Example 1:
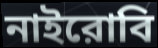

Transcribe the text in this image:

নাইরোবি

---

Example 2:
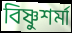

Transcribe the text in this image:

বিষ্ণুশর্মা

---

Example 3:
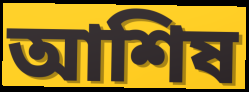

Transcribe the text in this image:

আশিষ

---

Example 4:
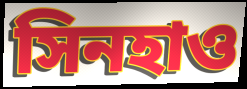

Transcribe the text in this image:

সিনহাও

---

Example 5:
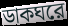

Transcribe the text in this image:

ডাকঘরে